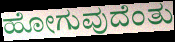
ಹೋಗುವುದೆಂತು